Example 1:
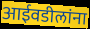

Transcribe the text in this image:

आईवडीलांना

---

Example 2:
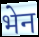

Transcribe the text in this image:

भेन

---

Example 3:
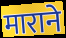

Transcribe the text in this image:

माराने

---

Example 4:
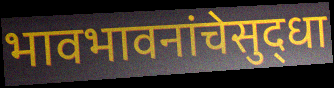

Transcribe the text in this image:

भावभावनांचेसुद्धा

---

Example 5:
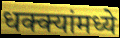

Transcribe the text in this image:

धक्क्यांमध्ये